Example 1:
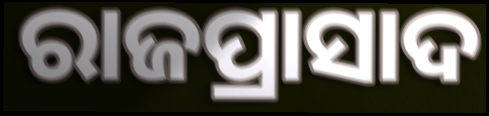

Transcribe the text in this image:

ରାଜପ୍ରାସାଦ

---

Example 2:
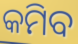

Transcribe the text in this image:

କମିବ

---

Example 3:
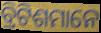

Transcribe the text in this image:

ବ୍ରିଟିଶମାନେ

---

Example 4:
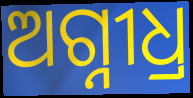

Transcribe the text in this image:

ଅଗ୍ନୀଧ୍ର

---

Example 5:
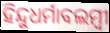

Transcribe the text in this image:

ହିନ୍ଦୁଧର୍ମାବଲମ୍ବୀ